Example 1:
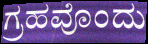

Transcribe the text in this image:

ಗ್ರಹವೊಂದು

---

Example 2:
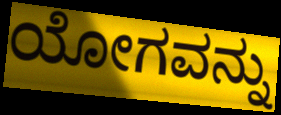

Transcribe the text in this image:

ಯೋಗವನ್ನು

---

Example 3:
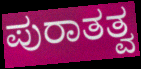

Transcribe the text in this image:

ಪುರಾತತ್ವ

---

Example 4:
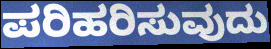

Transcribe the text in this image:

ಪರಿಹರಿಸುವುದು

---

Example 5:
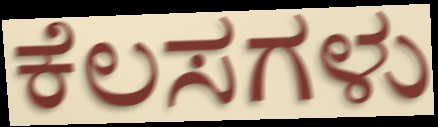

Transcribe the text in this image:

ಕೆಲಸಗಳು